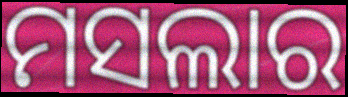
ମସଲାର